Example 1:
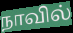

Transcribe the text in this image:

நாவில்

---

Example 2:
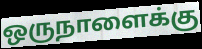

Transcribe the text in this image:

ஒருநாளைக்கு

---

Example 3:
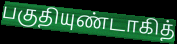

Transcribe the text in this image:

பகுதியுண்டாகித்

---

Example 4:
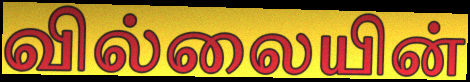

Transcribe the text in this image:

வில்லையின்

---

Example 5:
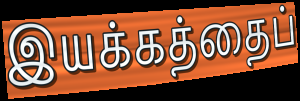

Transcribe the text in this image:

இயக்கத்தைப்